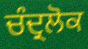
ਚੰਦ੍ਰਲੋਕ